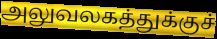
அலுவலகத்துக்குச்